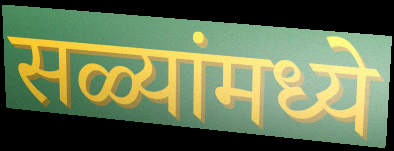
सळ्यांमध्ये